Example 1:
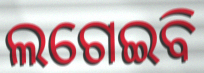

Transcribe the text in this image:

ଲଗେଇବି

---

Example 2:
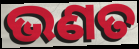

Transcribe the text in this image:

ଭଣତ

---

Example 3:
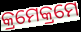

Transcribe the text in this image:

କ୍ରମେକ୍ରମେ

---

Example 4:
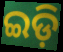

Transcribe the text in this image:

ଇଡ଼ି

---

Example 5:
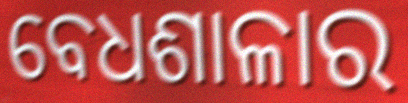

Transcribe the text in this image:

ବେଧଶାଳାର